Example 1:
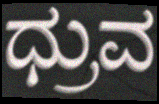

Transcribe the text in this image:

ಧ್ರುವ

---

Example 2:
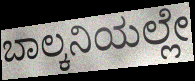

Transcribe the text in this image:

ಬಾಲ್ಕನಿಯಲ್ಲೇ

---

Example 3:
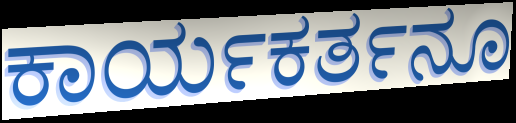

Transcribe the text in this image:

ಕಾರ್ಯಕರ್ತನೂ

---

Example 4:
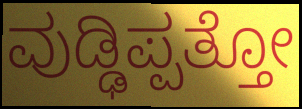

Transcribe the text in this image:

ವುಡ್ಢಿಪ್ಪತ್ತೋ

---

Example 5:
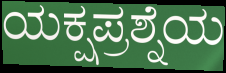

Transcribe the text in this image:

ಯಕ್ಷಪ್ರಶ್ನೆಯ